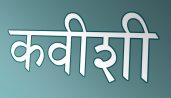
कवीशी